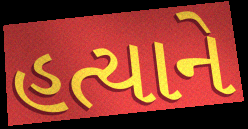
હત્યાને